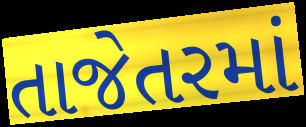
તાજેતરમાં